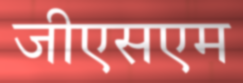
जीएसएम